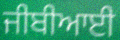
ਜੀਬੀਆਈ